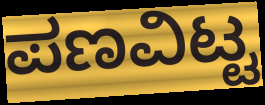
ಪಣವಿಟ್ಟ